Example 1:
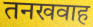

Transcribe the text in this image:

तनखवाह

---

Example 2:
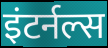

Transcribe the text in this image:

इंटर्नल्स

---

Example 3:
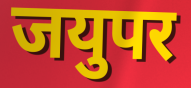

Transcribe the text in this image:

जयुपर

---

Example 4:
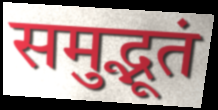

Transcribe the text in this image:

समुद्भूतं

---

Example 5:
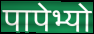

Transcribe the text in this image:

पापेभ्यो